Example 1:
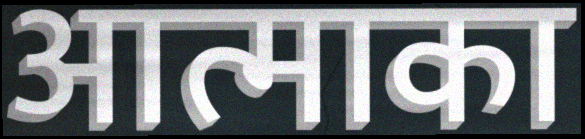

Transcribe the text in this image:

आत्माका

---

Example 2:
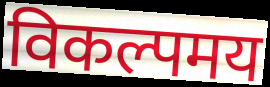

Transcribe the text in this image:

विकल्पमय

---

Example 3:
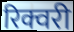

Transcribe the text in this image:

रिक्वरी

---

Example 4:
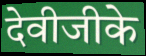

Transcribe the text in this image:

देवीजीके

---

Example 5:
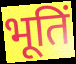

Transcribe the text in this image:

भूतिं